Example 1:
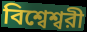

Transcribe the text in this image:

বিশ্বেশ্বরী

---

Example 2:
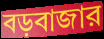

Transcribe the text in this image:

বড়বাজার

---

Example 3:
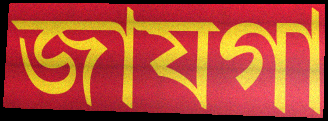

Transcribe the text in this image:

জাযগা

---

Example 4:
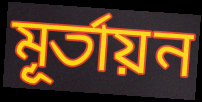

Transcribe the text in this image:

মূর্তায়ন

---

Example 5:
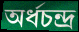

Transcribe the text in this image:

অর্ধচন্দ্র